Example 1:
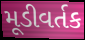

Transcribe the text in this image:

મૂડીવર્તક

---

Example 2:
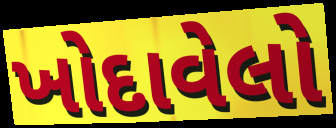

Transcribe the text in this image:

ખોદાવેલો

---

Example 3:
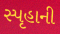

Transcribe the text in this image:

સ્પૃહાની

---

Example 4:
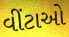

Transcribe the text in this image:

વીંટાઓ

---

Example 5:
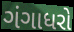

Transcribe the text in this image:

ગંગાધરો